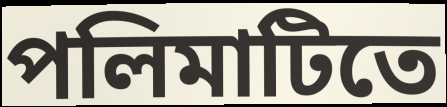
পলিমাটিতে